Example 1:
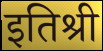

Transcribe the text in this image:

इतिश्री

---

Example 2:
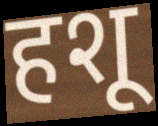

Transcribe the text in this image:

हशू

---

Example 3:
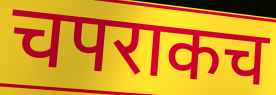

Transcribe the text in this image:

चपराकच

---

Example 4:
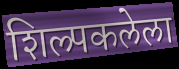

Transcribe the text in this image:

शिल्पकलेला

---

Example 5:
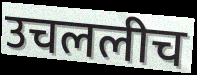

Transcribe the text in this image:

उचललीच